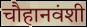
चौहानवंशी